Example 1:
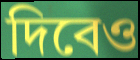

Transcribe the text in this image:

দিবেও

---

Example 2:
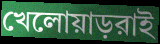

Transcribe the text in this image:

খেলোয়াড়রাই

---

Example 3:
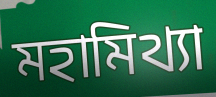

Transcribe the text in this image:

মহামিথ্যা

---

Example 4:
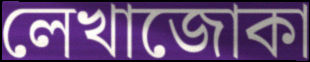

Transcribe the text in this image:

লেখাজোকা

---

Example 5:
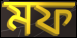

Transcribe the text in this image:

মফ